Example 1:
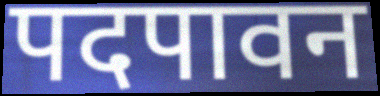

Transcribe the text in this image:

पदपावन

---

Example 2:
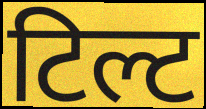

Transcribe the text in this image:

टिल्ट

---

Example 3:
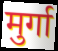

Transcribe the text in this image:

मुर्गा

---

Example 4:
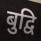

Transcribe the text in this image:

बुद्वि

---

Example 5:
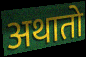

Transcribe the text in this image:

अथातो